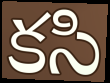
కసి